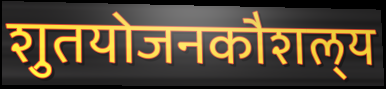
श्रुतयोजनकौशल्य